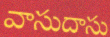
వాసుదాసు